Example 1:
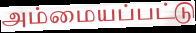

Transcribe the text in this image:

அம்மையப்பட்டு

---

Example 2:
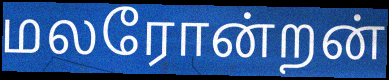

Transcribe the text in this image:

மலரோன்றன்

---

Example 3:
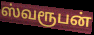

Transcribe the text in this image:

ஸ்வரூபன்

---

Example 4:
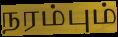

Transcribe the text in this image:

நரம்பும்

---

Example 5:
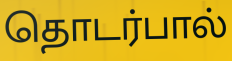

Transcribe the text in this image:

தொடர்பால்